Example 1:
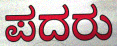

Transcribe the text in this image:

ಪದರು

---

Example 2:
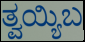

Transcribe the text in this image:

ತ್ವಯ್ಯಿಬ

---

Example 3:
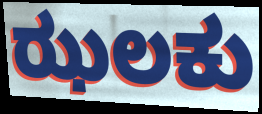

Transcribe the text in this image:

ಝಲಕು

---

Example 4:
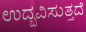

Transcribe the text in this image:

ಉದ್ಬವಿಸುತ್ತದೆ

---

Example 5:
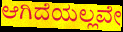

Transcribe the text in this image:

ಆಗಿದೆಯಲ್ಲವೇ